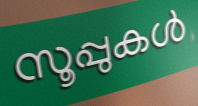
സൂപ്പുകൾ